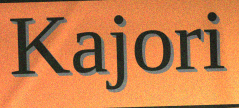
Kajori